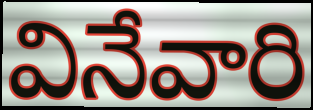
వినేవారి